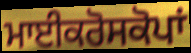
ਮਾਈਕਰੋਸਕੋਪਾਂ